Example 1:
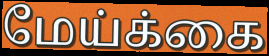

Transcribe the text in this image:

மேய்க்கை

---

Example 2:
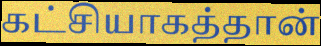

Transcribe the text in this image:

கட்சியாகத்தான்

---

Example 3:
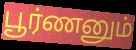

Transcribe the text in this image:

பூர்ணனும்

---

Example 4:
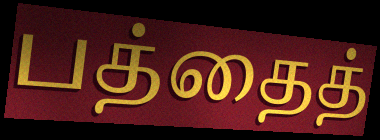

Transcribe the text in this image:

பத்தைத்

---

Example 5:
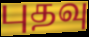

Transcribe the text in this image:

புதவு